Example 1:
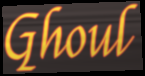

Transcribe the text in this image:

Ghoul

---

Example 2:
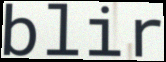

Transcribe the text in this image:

blir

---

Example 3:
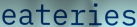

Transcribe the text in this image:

eateries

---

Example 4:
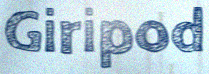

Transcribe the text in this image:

Giripod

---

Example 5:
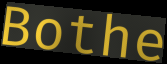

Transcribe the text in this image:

Bothe